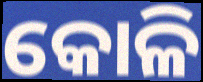
କୋଳି